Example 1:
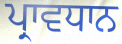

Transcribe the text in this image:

ਪ੍ਰਾਵਧਾਨ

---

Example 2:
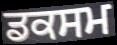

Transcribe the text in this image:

ਡਕਸਮ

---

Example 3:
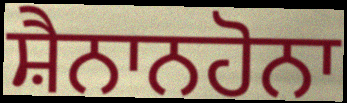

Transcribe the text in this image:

ਸ਼ੈਨਾਨਹੋਨਾ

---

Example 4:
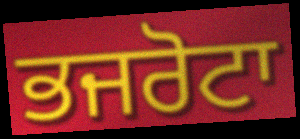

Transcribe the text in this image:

ਭਜਰੋਟਾ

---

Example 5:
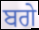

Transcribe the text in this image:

ਬਗੇ